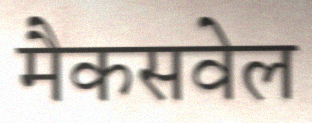
मैकसवेल